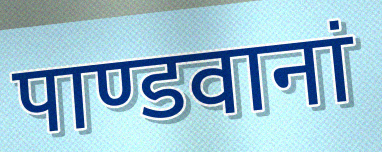
पाण्डवानां